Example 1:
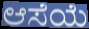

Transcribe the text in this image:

ಆಸೆಯೆ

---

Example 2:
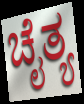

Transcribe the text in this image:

ಚೈತ್ಯ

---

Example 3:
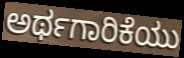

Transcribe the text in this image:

ಅರ್ಥಗಾರಿಕೆಯು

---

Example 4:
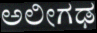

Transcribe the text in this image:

ಅಲೀಗಢ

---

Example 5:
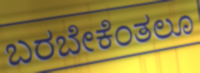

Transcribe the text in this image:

ಬರಬೇಕೆಂತಲೂ